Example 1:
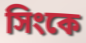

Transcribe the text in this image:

সিংকে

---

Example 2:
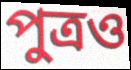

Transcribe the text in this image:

পুত্রও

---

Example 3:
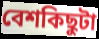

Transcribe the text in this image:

বেশকিছুটা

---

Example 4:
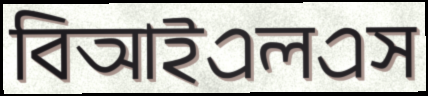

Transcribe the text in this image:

বিআইএলএস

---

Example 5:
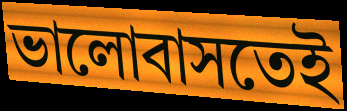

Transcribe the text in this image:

ভালোবাসতেই